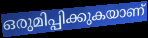
ഒരുമിപ്പിക്കുകയാണ്